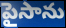
పైసాను